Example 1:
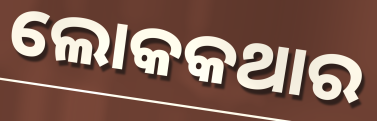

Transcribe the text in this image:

ଲୋକକଥାର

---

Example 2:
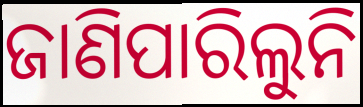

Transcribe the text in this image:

ଜାଣିପାରିଲୁନି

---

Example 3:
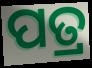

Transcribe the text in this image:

ପତ୍ର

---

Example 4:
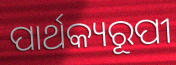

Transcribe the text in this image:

ପାର୍ଥକ୍ୟରୂପୀ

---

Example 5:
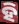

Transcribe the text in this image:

ହି